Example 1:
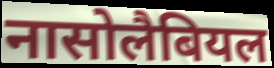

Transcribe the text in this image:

नासोलैबियल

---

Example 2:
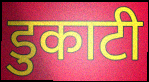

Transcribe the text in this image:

डुकाटी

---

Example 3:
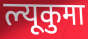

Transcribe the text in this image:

ल्यूकुमा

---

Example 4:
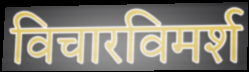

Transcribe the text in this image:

विचारविमर्श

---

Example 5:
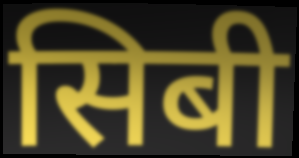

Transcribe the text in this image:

सिबी